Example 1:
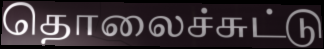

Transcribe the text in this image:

தொலைச்சுட்டு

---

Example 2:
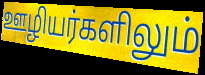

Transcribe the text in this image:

ஊழியர்களிலும்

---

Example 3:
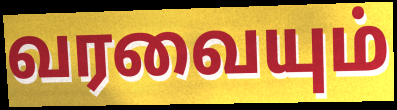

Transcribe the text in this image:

வரவையும்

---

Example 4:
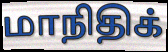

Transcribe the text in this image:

மாநிதிக்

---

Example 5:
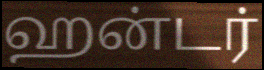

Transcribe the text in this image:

ஹன்டர்